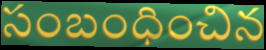
సంబంధించిన